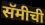
सॅमीची